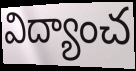
విద్యాంచ